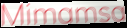
Mimamsa